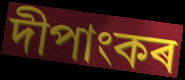
দীপাংকৰ